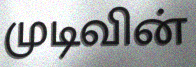
முடிவின்